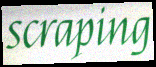
scraping